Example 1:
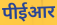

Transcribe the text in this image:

पीईआर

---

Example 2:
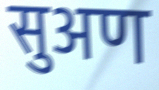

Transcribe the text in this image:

सुअण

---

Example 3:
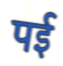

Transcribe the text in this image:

पई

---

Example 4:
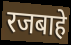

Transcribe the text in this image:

रजबाहे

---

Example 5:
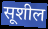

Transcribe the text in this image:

सूशील